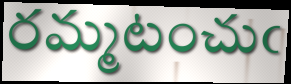
రమ్మటంచుఁ